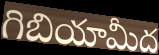
గిబియామీద